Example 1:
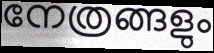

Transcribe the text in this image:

നേത്രങ്ങളും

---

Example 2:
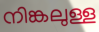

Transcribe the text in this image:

നിങ്കലുള്ള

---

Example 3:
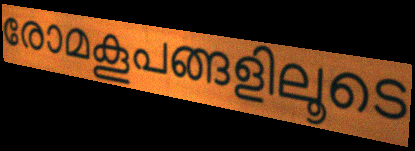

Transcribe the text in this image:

രോമകൂപങ്ങളിലൂടെ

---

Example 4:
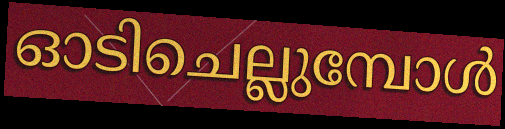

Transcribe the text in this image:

ഓടിചെല്ലുമ്പോൾ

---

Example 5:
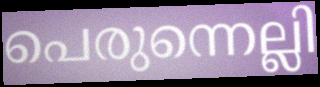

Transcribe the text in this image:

പെരുന്നെല്ലി